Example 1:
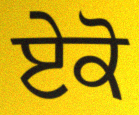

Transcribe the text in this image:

ਏਕੋ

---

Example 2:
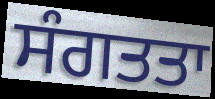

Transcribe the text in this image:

ਸੰਗਤਤਾ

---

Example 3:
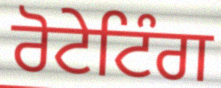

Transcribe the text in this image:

ਰੋਟੇਟਿੰਗ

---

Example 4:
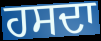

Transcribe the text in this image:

ਹਸਦਾ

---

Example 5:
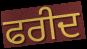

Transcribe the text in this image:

ਫਰੀਦ